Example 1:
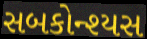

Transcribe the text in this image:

સબકોન્શ્યસ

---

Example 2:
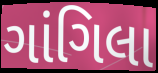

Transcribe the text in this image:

ગાંગિલા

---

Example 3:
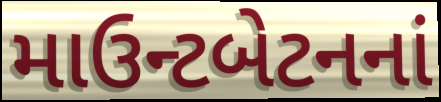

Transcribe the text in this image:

માઉન્ટબેટનનાં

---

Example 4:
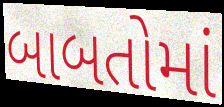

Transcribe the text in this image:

બાબતોમાં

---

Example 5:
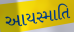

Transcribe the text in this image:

આયસ્માતિ